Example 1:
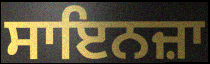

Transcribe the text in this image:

ਸਾਇਨਜ਼ਾ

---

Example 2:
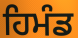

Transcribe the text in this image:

ਹਿਮੰਡ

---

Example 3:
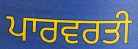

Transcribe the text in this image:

ਪਾਰਵਰਤੀ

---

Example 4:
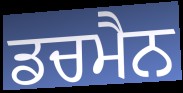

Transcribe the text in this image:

ਡਚਮੈਨ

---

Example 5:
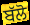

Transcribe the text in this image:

ਬੱਲੋ